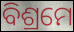
ବିଶ୍ରମେ